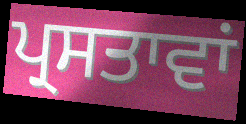
ਪ੍ਰਸਤਾਵਾਂ